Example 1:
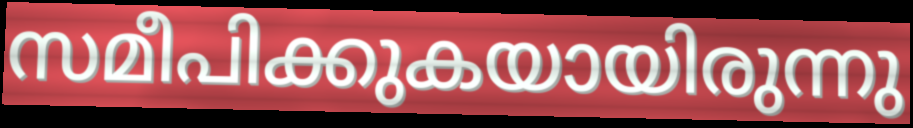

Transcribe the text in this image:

സമീപിക്കുകയായിരുന്നു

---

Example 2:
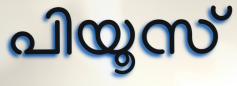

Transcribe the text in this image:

പിയൂസ്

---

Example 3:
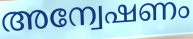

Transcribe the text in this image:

അന്വേഷണം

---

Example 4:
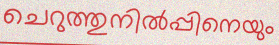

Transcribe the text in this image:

ചെറുത്തുനിൽപ്പിനെയും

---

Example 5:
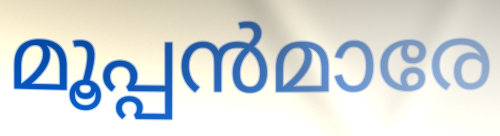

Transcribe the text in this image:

മൂപ്പൻമാരേ